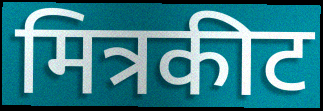
मित्रकीट